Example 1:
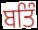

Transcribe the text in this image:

ਬਤਿੰ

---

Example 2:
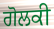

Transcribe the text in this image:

ਗੋਲਕੀ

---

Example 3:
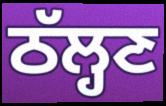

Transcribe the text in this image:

ਠੱਲ੍ਹਣ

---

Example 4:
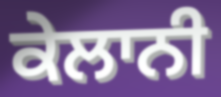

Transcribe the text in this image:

ਕੇਲਾਨੀ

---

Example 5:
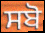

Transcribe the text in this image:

ਸਬੋ